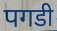
पगडी